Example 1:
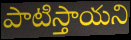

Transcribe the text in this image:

పాటిస్తాయని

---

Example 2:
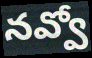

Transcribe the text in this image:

నవ్వో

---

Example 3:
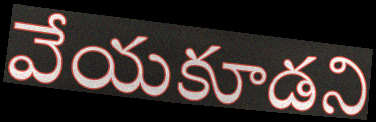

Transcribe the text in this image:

వేయకూడని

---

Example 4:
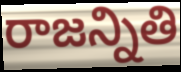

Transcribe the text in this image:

రాజన్నితి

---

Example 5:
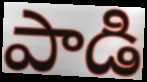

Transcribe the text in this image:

పాడి